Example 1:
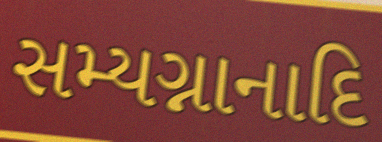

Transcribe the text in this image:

સમ્યગ્નાનાદિ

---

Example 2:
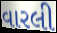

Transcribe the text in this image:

વારલી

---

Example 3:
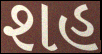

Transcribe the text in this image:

શહ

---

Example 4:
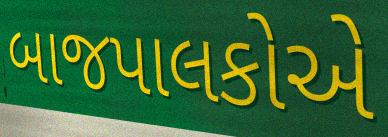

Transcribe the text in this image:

બાજપાલકોએ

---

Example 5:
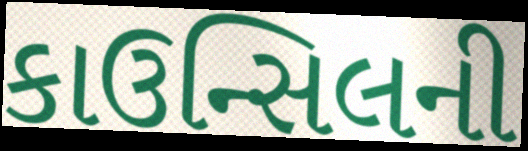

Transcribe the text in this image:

કાઉન્સિલની